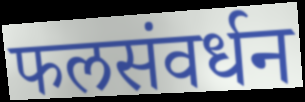
फलसंवर्धन